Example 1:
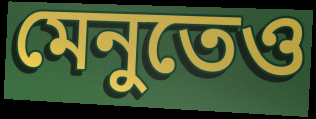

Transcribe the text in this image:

মেনুতেও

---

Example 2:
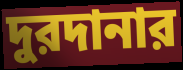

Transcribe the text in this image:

দুরদানার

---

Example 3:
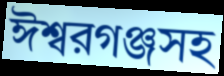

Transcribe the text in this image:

ঈশ্বরগঞ্জসহ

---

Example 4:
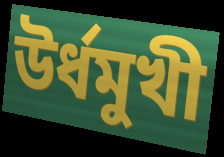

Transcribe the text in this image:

উর্ধমুখী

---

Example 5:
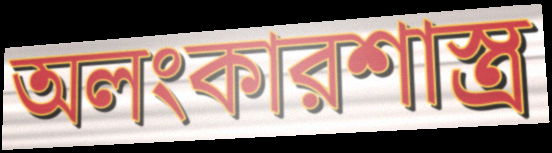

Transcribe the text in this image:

অলংকারশাস্ত্র